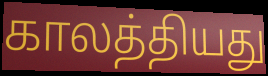
காலத்தியது